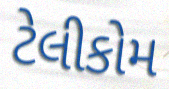
ટેલીકોમ